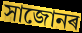
সাজোনৰ